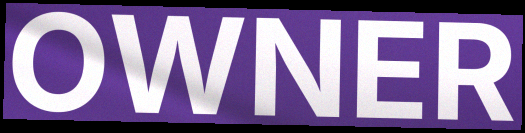
OWNER